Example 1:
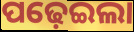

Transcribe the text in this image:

ପଢ଼େଇଲା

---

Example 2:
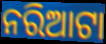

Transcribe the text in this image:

ନରିଆଟା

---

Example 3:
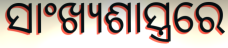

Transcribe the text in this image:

ସାଂଖ୍ୟଶାସ୍ତ୍ରରେ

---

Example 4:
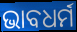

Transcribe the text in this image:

ଭାବଧର୍ମ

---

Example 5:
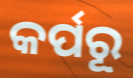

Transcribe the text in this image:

କର୍ପରୂ